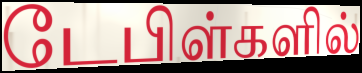
டேபிள்களில்